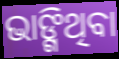
ଭାଙ୍ଗିଥିବା